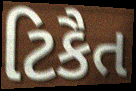
ટિકૈત